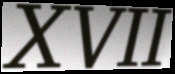
XVII